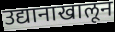
उद्यानाखालून